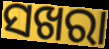
ସଖରା